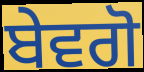
ਬੇਵਗੋ